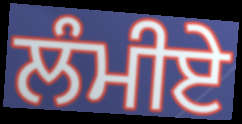
ਲੰਮੀਏ